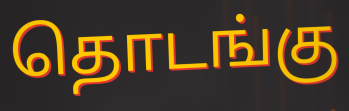
தொடங்கு